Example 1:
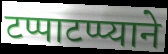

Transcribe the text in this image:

टप्पाटप्प्याने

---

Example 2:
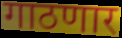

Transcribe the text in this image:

गाठणार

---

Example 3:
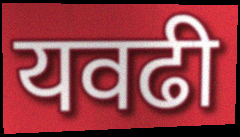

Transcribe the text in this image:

यवढी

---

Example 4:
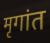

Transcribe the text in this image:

मृगांत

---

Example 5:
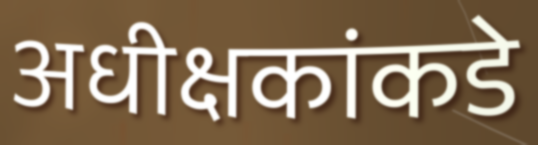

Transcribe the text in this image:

अधीक्षकांकडे